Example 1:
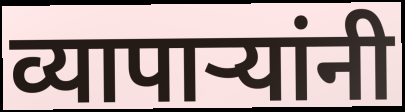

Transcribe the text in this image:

व्यापाऱ्यांनी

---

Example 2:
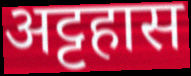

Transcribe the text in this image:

अट्टहास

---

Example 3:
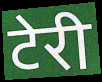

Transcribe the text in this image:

टेरी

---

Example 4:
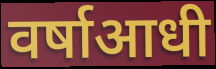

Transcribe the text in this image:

वर्षाआधी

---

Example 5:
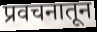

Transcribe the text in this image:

प्रवचनातून